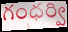
గంధర్వి